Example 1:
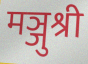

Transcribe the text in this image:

मञ्जुश्री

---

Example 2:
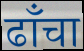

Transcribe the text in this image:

ढाँचा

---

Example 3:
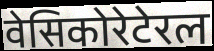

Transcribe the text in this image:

वेसिकोरेटेरल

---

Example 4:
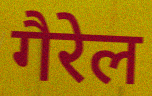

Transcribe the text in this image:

गैरेल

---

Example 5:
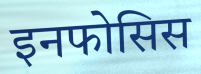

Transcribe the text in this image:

इनफोसिस